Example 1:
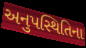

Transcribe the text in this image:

અનુપસ્થિતિના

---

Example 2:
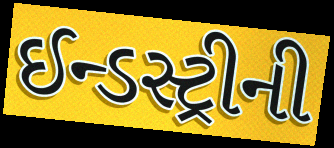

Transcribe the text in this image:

ઈન્ડસ્ટ્રીની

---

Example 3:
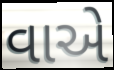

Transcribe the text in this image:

વાએ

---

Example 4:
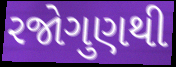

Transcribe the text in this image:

રજોગુણથી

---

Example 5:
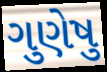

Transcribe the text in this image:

ગુણેષુ